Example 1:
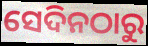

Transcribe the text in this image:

ସେଦିନଠାରୁ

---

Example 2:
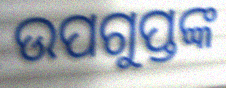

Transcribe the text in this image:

ଉପଗୁପ୍ତଙ୍କ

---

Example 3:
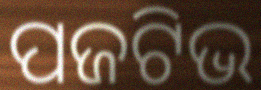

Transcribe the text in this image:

ପଜଟିଭ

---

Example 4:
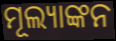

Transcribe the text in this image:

ମୂଲ୍ୟାଙ୍କନ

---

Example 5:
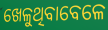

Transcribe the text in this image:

ଖେଳୁଥିବାବେଳେ